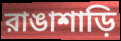
রাঙাশাড়ি